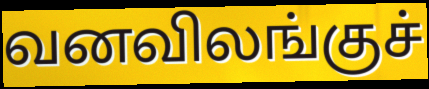
வனவிலங்குச்